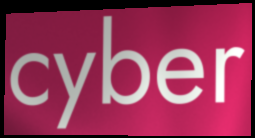
cyber